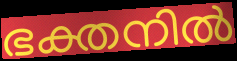
ഭക്തനിൽ